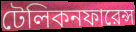
টেলিকনফারেন্স